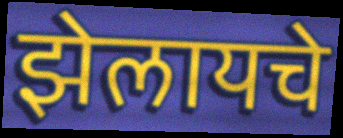
झेलायचे